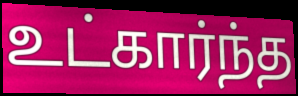
உட்கார்ந்த